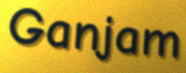
Ganjam